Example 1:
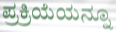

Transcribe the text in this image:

ಪ್ರಕ್ರಿಯೆಯನ್ನೂ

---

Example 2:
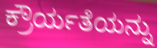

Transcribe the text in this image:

ಕ್ರೌರ್ಯತೆಯನ್ನು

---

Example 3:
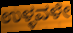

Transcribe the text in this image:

ಉಳ್ಳವಳೇ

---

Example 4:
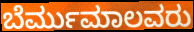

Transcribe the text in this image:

ಬೆರ್ಮುಮಾಲವರು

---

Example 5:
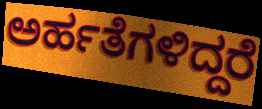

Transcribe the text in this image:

ಅರ್ಹತೆಗಳಿದ್ದರೆ